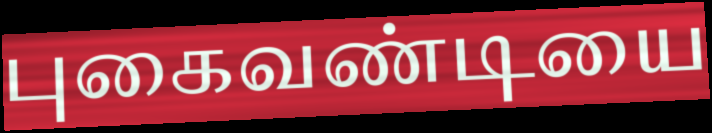
புகைவண்டியை